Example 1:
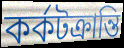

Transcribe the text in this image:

কর্কটক্রান্তি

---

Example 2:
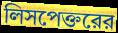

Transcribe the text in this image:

লিসপেক্তরের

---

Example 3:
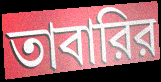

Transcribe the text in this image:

তাবারির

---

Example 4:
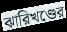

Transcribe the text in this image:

ঝারিখণ্ডের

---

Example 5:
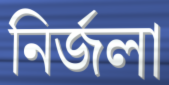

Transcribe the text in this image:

নির্জলা